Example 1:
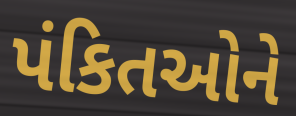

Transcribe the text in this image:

પંકિતઓને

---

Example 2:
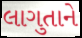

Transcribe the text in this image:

લાગુતાને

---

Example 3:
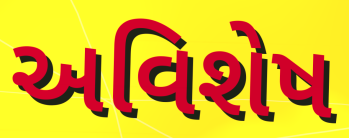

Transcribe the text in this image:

અવિશેષ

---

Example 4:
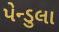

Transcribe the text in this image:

પેન્ડુલા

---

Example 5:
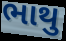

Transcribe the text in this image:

ભાથુ